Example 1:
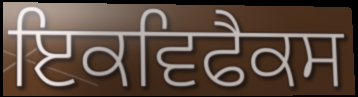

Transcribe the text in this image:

ਇਕਵਿਫੈਕਸ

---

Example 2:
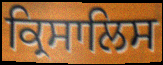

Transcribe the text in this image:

ਕ੍ਰਿਸਾਲਿਸ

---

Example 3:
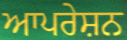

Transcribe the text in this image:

ਆਪਰੇਸ਼ਨ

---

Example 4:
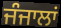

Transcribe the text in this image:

ਜੰਜਾਲਾਂ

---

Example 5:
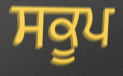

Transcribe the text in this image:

ਸਕੂਪ